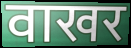
वाखर